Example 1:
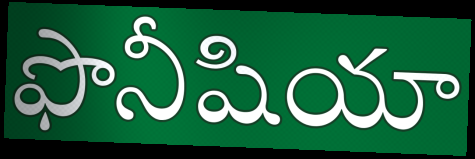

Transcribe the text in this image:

ఫొనీషియా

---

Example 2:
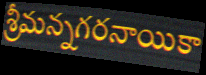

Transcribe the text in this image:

శ్రీమన్నగరనాయికా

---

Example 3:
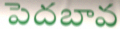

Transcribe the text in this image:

పెదబావ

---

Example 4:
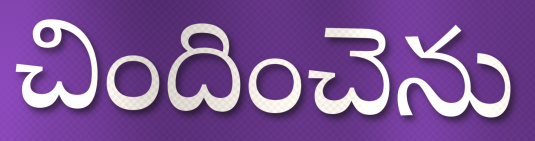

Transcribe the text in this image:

చిందించెను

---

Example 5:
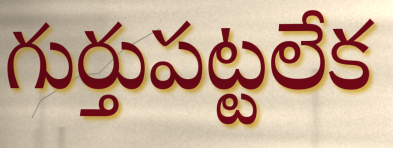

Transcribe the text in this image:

గుర్తుపట్టలేక